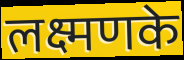
लक्ष्मणके